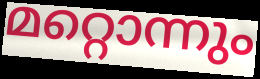
മറ്റൊന്നും